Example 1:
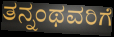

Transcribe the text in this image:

ತನ್ನಂಥವರಿಗೆ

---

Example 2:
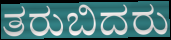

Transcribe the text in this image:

ತರುಬಿದರು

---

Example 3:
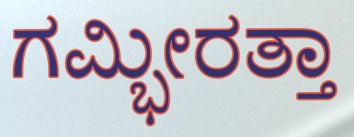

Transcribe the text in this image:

ಗಮ್ಭೀರತ್ತಾ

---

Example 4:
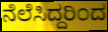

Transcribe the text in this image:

ನೆಲೆಸಿದ್ದರಿಂದ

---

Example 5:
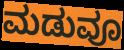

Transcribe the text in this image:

ಮಡುವೂ